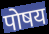
पोषय